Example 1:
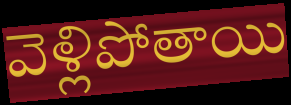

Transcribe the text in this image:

వెళ్లిపోతాయి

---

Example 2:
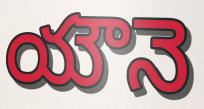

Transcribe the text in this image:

యౌనె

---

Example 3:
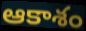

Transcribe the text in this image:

ఆకాశం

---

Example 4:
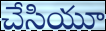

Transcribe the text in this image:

చేసియూ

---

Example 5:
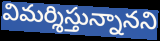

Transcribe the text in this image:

విమర్శిస్తున్నానని